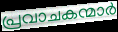
പ്രവാചകന്മാർ